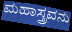
ಮಹಾಸ್ತ್ರವನು